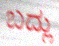
ಬದ್ಲು